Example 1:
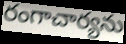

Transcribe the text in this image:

రంగాచార్యను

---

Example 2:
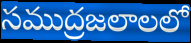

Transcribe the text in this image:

సముద్రజలాలలో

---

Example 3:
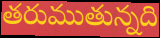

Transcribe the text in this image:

తరుముతున్నది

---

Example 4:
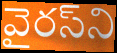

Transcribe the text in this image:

వైరస్‌ని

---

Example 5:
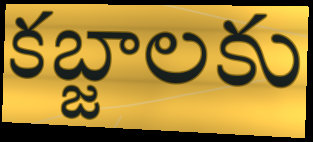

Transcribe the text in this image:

కబ్జాలకు